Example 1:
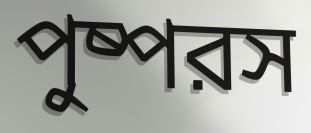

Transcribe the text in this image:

পুষ্পরস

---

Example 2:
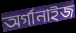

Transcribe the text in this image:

অর্গানাইজ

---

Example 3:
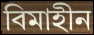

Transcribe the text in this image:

বিমাহীন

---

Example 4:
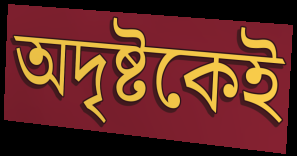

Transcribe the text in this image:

অদৃষ্টকেই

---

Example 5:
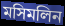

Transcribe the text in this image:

মসিমলিন